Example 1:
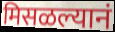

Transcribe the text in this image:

मिसळल्यानं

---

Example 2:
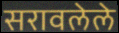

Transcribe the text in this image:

सरावलेले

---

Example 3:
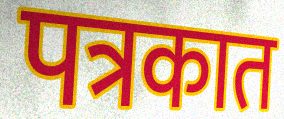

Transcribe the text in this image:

पत्रकात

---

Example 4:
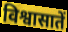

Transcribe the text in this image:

विश्वासातें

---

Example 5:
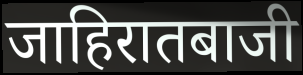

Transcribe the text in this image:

जाहिरातबाजी